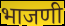
भाजणी